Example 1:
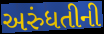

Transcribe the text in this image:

અરુંધતીની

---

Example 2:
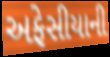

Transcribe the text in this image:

અફેસીયાની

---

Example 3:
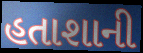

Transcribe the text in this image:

હતાશાની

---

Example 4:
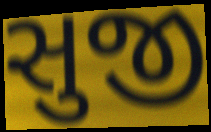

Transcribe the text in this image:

સુજી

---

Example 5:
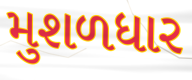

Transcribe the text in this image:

મુશળધાર